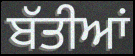
ਬੱਤੀਆਂ